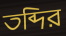
তব্দির